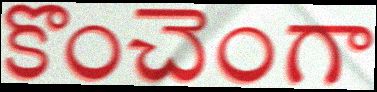
కొంచెంగా